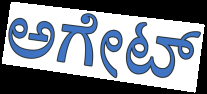
ಅಗೇಟ್